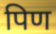
पिण